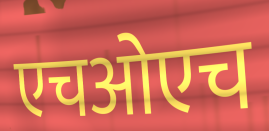
एचओएच